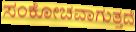
ಸಂಕೋಚವಾಗುತ್ತದೆ